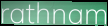
rathnam